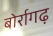
बोर्रागढ़